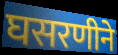
घसरणीने